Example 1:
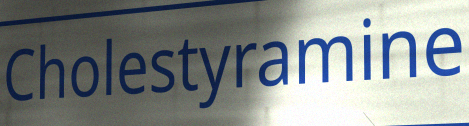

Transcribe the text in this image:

Cholestyramine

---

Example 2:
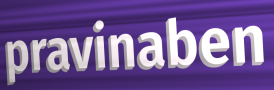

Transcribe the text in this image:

pravinaben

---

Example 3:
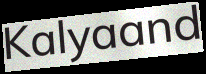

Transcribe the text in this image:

Kalyaand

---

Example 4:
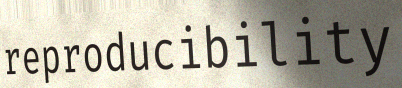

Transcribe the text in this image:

reproducibility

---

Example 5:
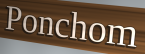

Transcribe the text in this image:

Ponchom